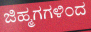
ಜಿಹ್ಮಗಗಳಿಂದ